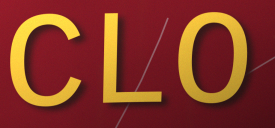
CLO